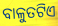
ବାଳୁତଟିଏ